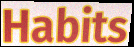
Habits